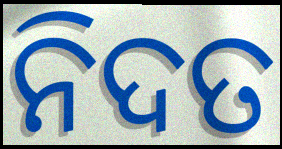
ନିଦତ